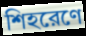
শিহরেণে